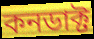
কনডাক্ট